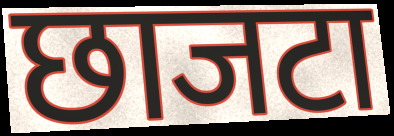
छाजटा